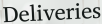
Deliveries